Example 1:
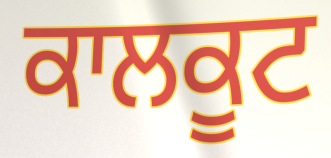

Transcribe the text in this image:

ਕਾਲਕੂਟ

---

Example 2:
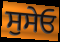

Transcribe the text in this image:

ਸੁਸੇਓ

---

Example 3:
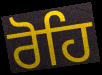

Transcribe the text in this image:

ਰੋਹਿ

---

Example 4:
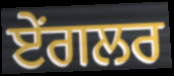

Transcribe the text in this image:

ਏਂਗਲਰ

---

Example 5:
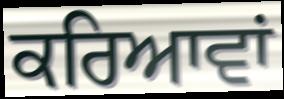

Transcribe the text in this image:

ਕਰਿਆਵਾਂ